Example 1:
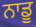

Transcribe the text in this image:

ਨਾਡੂ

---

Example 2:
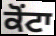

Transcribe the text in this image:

ਕੋਂਟਾ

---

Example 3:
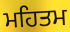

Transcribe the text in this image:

ਮਹਿਤਮ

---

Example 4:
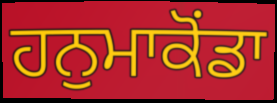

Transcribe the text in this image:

ਹਨੁਮਾਕੋਂਡਾ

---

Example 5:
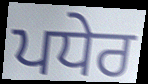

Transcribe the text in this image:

ਪਧੇਰ